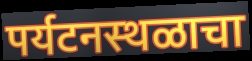
पर्यटनस्थळाचा